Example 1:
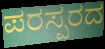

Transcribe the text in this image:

ಪರಸ್ಪರದ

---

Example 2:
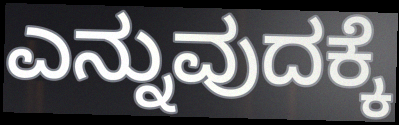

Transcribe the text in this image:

ಎನ್ನುವುದಕ್ಕೆ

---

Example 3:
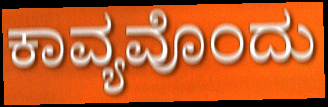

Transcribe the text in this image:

ಕಾವ್ಯವೊಂದು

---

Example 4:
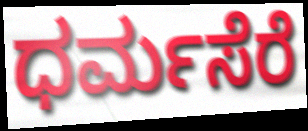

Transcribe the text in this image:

ಧರ್ಮಸೆರೆ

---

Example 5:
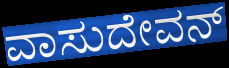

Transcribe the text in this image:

ವಾಸುದೇವನ್